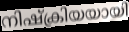
നിഷ്ക്രിയയായി